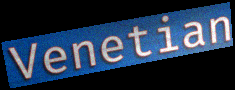
Venetian